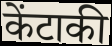
केंटाकी